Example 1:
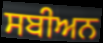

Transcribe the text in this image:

ਸਬੀਅਨ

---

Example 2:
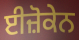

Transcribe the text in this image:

ਈਜ਼ੋਕੇਨ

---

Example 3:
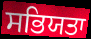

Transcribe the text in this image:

ਸਭਿਯਤਾ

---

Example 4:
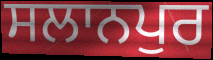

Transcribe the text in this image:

ਸਲਾਨਪੁਰ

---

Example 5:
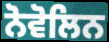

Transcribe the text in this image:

ਨੋਵੋਲਿਨ